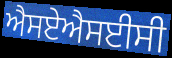
ਐਸਏਐਸਈਸੀ